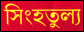
সিংহতুল্য